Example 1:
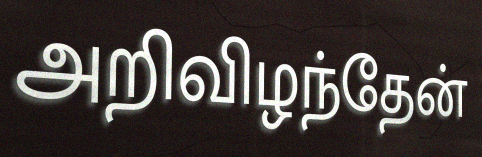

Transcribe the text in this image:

அறிவிழந்தேன்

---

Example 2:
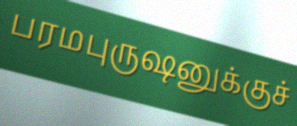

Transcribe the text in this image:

பரமபுருஷனுக்குச்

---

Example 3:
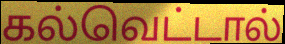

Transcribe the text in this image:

கல்வெட்டால்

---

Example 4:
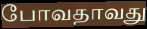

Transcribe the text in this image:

போவதாவது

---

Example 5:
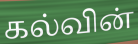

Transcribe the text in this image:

கல்வின்